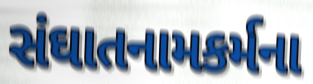
સંઘાતનામકર્મના